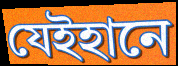
যেইহানে